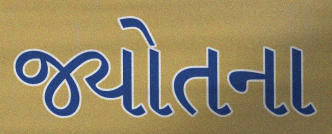
જ્યોતના